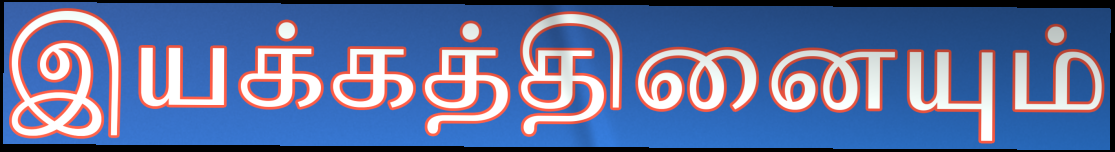
இயக்கத்தினையும்